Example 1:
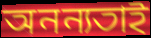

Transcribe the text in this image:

অনন্যতাই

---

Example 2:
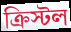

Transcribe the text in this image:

ক্রিস্টল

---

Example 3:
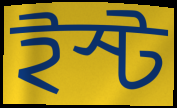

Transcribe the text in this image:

ইস্ট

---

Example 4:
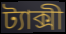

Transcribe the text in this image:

ট্যাক্সী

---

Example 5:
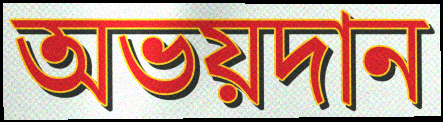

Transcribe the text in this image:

অভয়দান